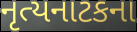
નૃત્યનાટકના